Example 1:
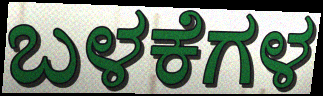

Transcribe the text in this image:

ಬಳಕೆಗಳ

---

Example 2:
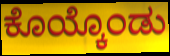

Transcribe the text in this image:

ಕೊಯ್ಕೊಂಡು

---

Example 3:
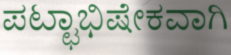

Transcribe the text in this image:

ಪಟ್ಟಾಭಿಷೇಕವಾಗಿ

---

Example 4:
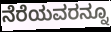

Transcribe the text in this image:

ನೆರೆಯವರನ್ನೂ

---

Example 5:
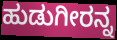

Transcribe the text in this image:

ಹುಡುಗೀರನ್ನ